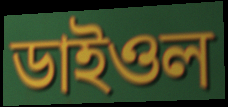
ডাইওল